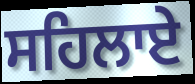
ਸਹਿਲਾਏ